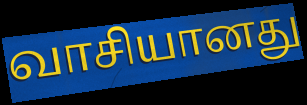
வாசியானது